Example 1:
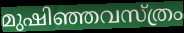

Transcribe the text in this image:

മുഷിഞ്ഞവസ്ത്രം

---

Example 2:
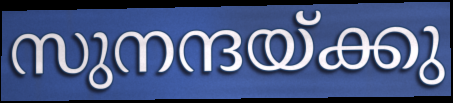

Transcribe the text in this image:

സുനന്ദയ്ക്കു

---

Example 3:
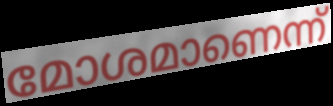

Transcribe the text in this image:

മോശമാണെന്ന്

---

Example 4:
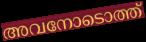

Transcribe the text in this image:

അവനോടൊത്ത്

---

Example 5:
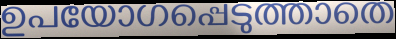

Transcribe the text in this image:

ഉപയോഗപ്പെടുത്താതെ